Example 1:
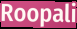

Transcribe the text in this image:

Roopali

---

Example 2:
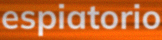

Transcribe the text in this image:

espiatorio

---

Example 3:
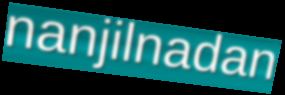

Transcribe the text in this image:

nanjilnadan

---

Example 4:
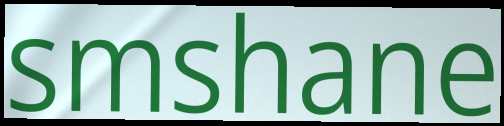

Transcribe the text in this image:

smshane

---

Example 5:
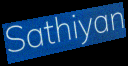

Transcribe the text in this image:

Sathiyan